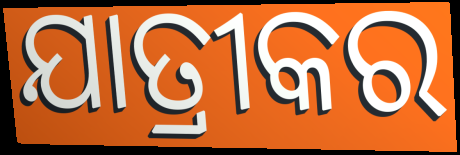
ଯାତ୍ରୀକର